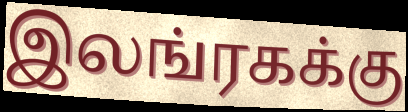
இலங்ரகக்கு